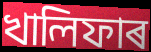
খালিফাৰ